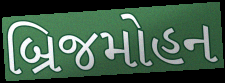
બ્રિજમોહન